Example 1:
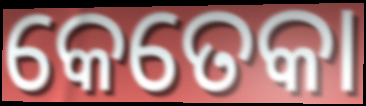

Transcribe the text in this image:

କେତେକା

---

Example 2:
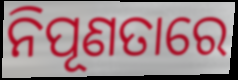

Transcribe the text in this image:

ନିପୂଣତାରେ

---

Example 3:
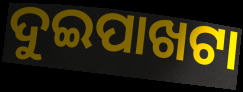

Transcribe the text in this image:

ଦୁଇପାଖଟା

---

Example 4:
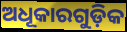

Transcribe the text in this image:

ଅଧୂକାରଗୁଡ଼ିକ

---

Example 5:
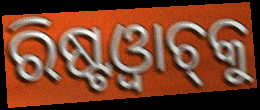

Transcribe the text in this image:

ରିଷ୍ଟଓ୍ୱାଚ୍‍କୁ